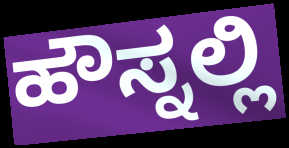
ಹೌಸ್ನಲ್ಲಿ